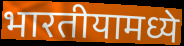
भारतीयामध्ये